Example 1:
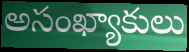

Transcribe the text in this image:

అసంఖ్యాకులు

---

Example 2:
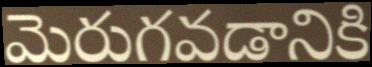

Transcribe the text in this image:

మెరుగవడానికి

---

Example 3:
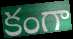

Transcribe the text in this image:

కంగా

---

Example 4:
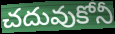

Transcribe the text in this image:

చదువుకోనీ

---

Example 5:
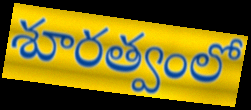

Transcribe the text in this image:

శూరత్వంలో